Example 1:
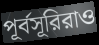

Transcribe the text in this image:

পূর্বসূরিরাও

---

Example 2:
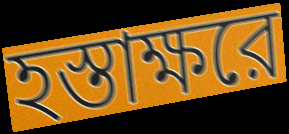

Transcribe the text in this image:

হস্তাক্ষরে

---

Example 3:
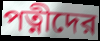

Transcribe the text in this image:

পত্নীদের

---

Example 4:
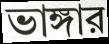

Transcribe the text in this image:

ভাঙ্গার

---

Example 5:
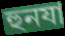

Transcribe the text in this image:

হুনযা